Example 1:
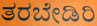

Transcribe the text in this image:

ತರಬೇಡಿರಿ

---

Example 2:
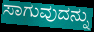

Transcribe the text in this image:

ಸಾಗುವುದನ್ನು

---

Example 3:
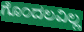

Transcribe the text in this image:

ಗೊಂದಲವಿಲ್ಲ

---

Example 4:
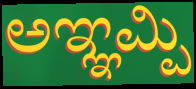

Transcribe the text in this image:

ಅಞ್ಞಮ್ಪಿ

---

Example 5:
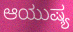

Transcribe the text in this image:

ಆಯುಷ್ಯ